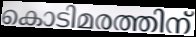
കൊടിമരത്തിന്